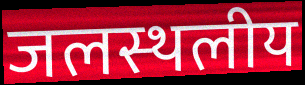
जलस्थलीय